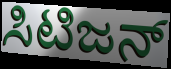
ಸಿಟಿಜನ್